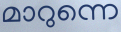
മാറുന്നെ